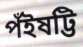
পঁইষট্টি